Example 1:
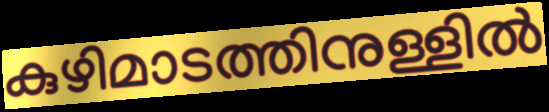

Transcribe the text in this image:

കുഴിമാടത്തിനുള്ളിൽ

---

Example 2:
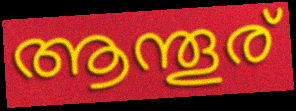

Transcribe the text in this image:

ആന്തൂര്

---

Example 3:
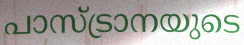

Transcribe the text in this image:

പാസ്ട്രാനയുടെ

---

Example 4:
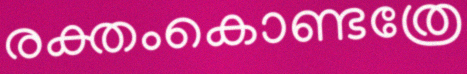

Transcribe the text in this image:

രക്തംകൊണ്ടത്രേ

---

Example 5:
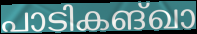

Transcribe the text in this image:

പാടികങ്ഖാ